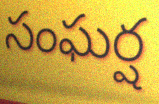
సంఘర్ష